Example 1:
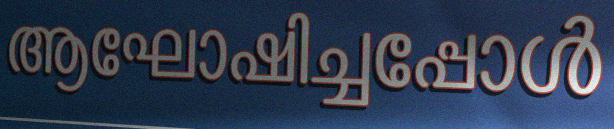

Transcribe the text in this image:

ആഘോഷിച്ചപ്പോൾ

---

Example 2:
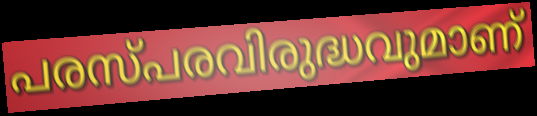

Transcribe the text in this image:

പരസ്പരവിരുദ്ധവുമാണ്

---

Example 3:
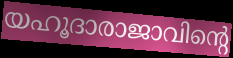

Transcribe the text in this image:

യഹൂദാരാജാവിന്റെ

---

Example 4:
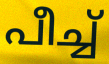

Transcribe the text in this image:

പീച്ച്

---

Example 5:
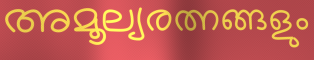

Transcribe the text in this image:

അമൂല്യരത്നങ്ങളും